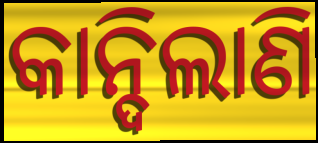
କାନ୍ଦିଲାଣି